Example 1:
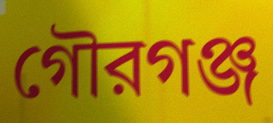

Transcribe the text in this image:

গৌরগঞ্জ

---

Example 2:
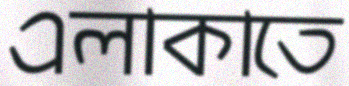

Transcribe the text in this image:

এলাকাতে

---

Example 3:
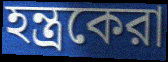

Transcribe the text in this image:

হন্ত্রকেরা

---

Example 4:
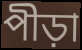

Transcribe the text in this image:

পীড়া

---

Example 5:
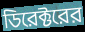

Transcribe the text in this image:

ডিরেক্টরের